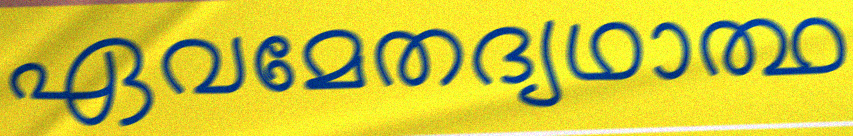
ഏവമേതദ്യഥാത്ഥ